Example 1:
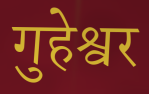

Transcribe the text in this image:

गुहेश्वर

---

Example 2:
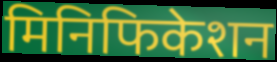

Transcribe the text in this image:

मिनिफिकेशन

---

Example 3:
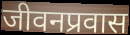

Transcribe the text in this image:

जीवनप्रवास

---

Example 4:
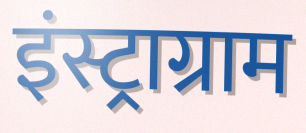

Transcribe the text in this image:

इंस्ट्राग्राम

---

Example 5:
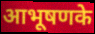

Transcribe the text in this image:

आभूषणके